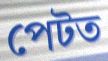
পেটত